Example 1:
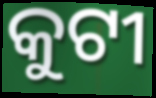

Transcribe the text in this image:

କୁଟୀ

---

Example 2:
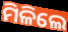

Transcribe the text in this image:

ମିଳିଲେ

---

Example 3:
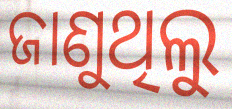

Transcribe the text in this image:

ଜାଣୁଥିଲୁ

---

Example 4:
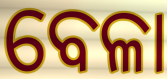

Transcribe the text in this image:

ବେଳା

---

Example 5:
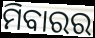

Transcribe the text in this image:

ମିବାରର